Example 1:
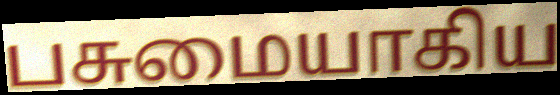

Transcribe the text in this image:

பசுமையாகிய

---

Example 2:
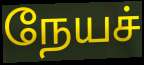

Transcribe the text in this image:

நேயச்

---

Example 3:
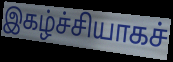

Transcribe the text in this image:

இகழ்ச்சியாகச்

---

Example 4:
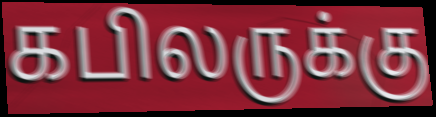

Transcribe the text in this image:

கபிலருக்கு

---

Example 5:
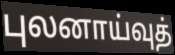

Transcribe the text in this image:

புலனாய்வுத்